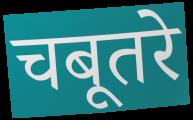
चबूतरे